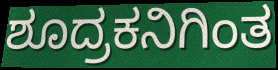
ಶೂದ್ರಕನಿಗಿಂತ